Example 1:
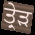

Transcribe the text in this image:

ਤ੍ਰੇੜ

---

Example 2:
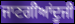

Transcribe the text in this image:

ਜਾਣਗੀਆਂਦੂਜੀ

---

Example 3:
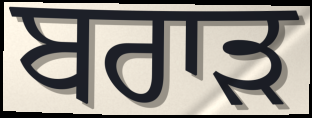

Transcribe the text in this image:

ਬਰਾਡ਼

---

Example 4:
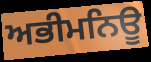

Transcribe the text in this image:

ਅਭੀਮਨਿਊ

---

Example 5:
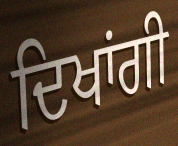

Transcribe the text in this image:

ਦਿਖਾਂਗੀ